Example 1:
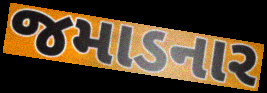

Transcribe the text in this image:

જમાડનાર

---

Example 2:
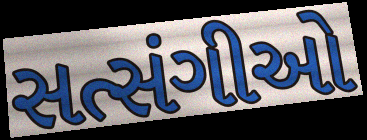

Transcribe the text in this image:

સત્સંગીઓ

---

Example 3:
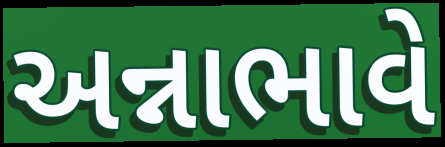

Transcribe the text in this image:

અન્નાભાવે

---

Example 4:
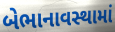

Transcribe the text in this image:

બેભાનાવસ્થામાં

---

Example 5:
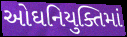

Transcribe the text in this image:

ઓઘનિયુક્તિમાં